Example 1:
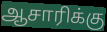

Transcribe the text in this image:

ஆசாரிக்கு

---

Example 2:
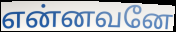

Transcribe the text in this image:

என்னவனே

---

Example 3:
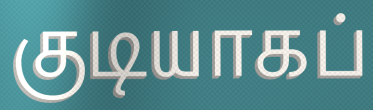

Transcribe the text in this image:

குடியாகப்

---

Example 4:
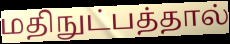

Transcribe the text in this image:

மதிநுட்பத்தால்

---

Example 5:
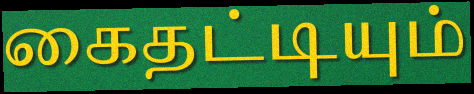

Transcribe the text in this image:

கைதட்டியும்